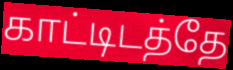
காட்டிடத்தே